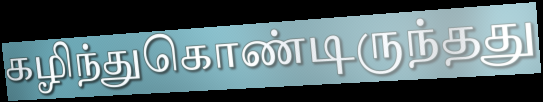
கழிந்துகொண்டிருந்தது